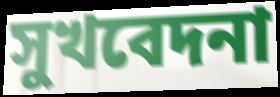
সুখবেদনা